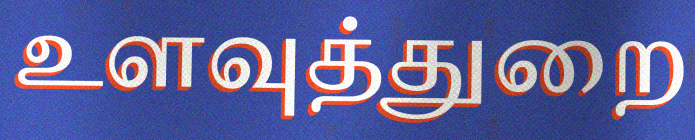
உளவுத்துறை